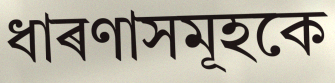
ধাৰণাসমূহকে